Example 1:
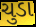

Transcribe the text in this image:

ચુડા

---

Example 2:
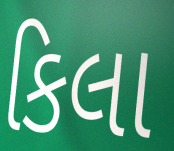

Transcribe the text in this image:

કિલા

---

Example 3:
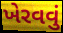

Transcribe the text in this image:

ખેરવવું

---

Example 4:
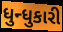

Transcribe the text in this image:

ધુન્ધુકારી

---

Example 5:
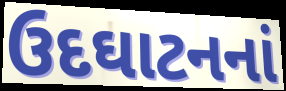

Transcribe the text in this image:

ઉદઘાટનનાં